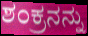
ಶಂಕ್ರನನ್ನು